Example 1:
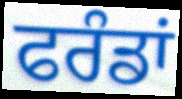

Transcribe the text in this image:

ਫਰੰਡਾਂ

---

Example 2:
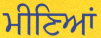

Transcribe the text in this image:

ਮੀਣਿਆਂ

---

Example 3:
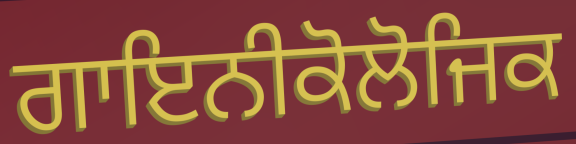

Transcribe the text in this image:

ਗਾਇਨੀਕੋਲੋਜਿਕ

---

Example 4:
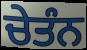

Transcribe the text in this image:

ਚੇਤੰਨ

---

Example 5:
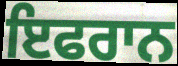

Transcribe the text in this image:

ਇਫਰਾਨ